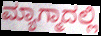
ಮ್ಯಾಗ್ಮಾದಲ್ಲಿ